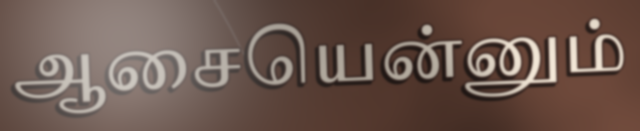
ஆசையென்னும்